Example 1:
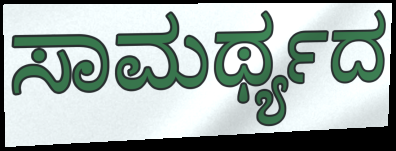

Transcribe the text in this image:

ಸಾಮರ್ಥ್ಯದ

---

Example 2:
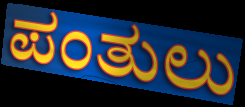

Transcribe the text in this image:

ಪಂತುಲು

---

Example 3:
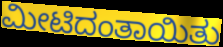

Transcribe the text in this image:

ಮೀಟಿದಂತಾಯಿತು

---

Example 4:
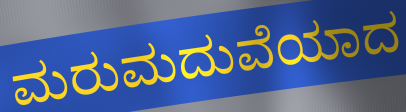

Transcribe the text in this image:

ಮರುಮದುವೆಯಾದ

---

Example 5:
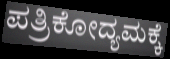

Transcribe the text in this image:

ಪತ್ರಿಕೋದ್ಯಮಕ್ಕೆ